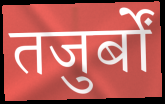
तजुर्बों